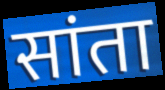
सांता